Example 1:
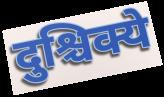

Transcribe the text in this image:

दुश्चिक्ये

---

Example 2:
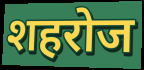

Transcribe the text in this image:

शहरोज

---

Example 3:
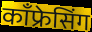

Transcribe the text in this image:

कॉंफ्रेसिंग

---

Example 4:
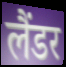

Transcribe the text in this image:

लैंडर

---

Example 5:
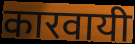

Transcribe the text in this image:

कारवायी